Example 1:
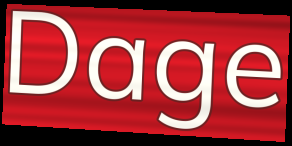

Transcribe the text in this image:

Dage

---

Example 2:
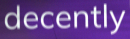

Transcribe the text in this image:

decently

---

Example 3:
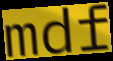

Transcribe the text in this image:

mdf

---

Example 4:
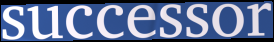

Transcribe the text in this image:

successor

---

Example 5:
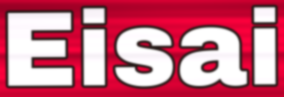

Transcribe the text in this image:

Eisai